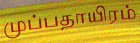
முப்பதாயிரம்